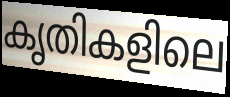
കൃതികളിലെ